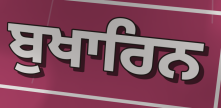
ਬੁਖਾਰਿਨ